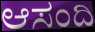
ಆಸಂದಿ